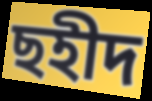
ছহীদ